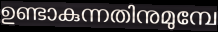
ഉണ്ടാകുന്നതിനുമുമ്പേ